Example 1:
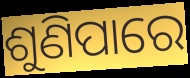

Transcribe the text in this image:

ଶୁଣିପାରେ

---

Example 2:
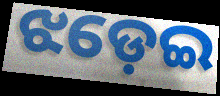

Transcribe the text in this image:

ଝଡ଼େଇ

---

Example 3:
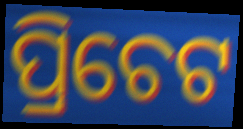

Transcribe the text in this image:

ପ୍ରିଚେଟ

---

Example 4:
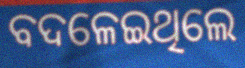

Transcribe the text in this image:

ବଦଳେଇଥିଲେ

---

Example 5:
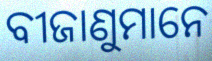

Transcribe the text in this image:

ବୀଜାଣୁମାନେ